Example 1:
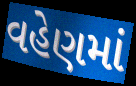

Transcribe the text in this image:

વહેણમાં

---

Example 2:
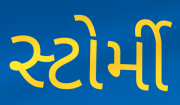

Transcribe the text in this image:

સ્ટોર્મી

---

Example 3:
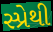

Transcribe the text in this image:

સ્પ્રેથી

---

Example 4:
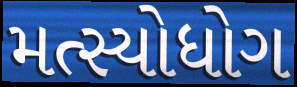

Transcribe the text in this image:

મત્સ્યોધોગ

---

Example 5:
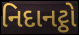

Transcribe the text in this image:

નિદાનટ્ઠો